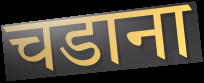
चडाना